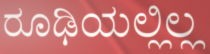
ರೂಢಿಯಲ್ಲಿಲ್ಲ